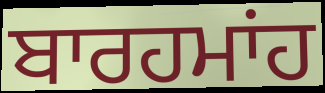
ਬਾਰਹਮਾਂਹ